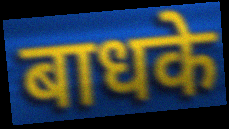
बाधके